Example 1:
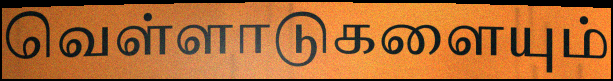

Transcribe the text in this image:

வெள்ளாடுகளையும்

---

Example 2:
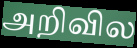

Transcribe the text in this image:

அறிவில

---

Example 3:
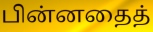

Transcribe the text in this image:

பின்னதைத்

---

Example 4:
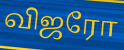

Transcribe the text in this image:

விஜரோ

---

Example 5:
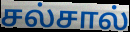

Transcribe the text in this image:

சல்சால்